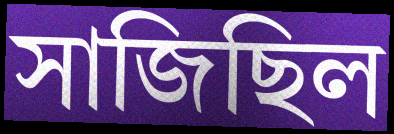
সাজিছিল